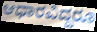
ಆಧಾರವಿದ್ದರೂ